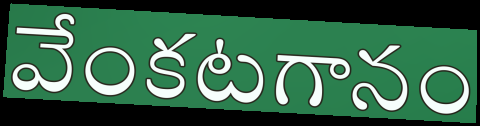
వేంకటగానం